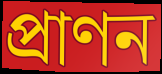
প্রাণন